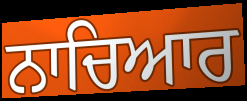
ਨਾਚਿਆਰ